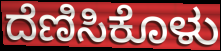
ದೆಣಿಸಿಕೊಳು